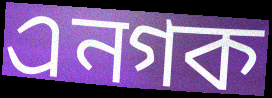
এনগক